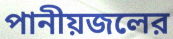
পানীয়জলের